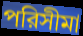
পরিসীমা